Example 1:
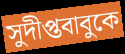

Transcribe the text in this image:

সুদীপ্তবাবুকে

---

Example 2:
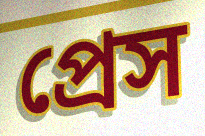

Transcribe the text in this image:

প্রেস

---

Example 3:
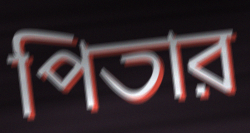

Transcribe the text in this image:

পিতার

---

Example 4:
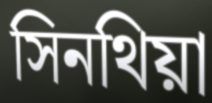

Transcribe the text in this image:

সিনথিয়া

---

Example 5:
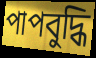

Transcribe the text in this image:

পাপবুদ্ধি